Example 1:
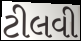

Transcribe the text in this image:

ટીલવી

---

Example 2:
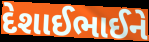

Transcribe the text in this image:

દેશાઈભાઈને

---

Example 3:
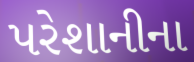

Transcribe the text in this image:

પરેશાનીના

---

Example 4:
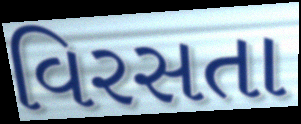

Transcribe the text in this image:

વિરસતા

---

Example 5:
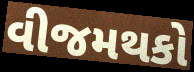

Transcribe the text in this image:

વીજમથકો